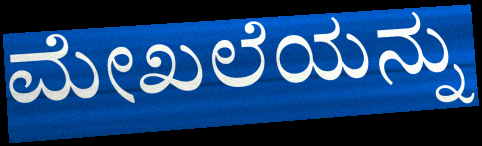
ಮೇಖಲೆಯನ್ನು